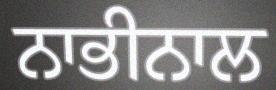
ਨਾਭੀਨਾਲ